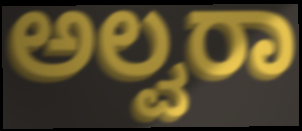
ಅಲ್ವರಾ